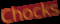
Chocks